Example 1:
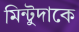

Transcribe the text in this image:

মিন্টুদাকে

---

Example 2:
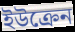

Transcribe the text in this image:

ইউক্রেন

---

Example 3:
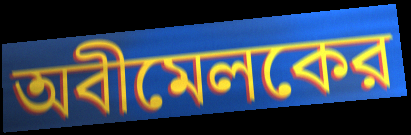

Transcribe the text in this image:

অবীমেলকের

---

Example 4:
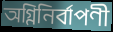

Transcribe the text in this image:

অগ্নিনির্বাপণী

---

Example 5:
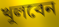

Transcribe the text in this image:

খুলবেন